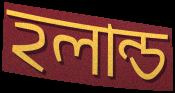
হলান্ড